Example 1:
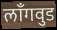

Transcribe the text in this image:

लाँगवुड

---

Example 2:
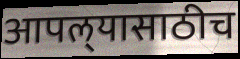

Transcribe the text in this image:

आपल्यासाठीच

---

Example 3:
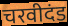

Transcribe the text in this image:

चरवीदंड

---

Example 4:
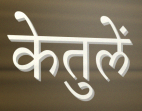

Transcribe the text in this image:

केतुलें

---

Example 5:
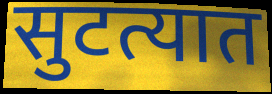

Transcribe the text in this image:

सुटत्यात